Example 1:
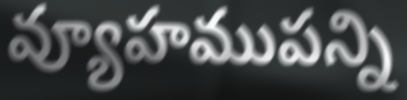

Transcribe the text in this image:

వ్యూహముపన్ని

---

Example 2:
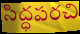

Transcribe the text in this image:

సిద్ధపరచి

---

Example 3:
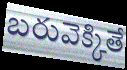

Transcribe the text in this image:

బరువెక్కితే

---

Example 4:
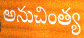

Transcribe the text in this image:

అనుచింత్య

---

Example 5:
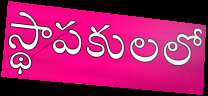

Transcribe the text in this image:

స్థాపకులలో